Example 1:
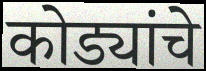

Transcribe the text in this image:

कोड्यांचे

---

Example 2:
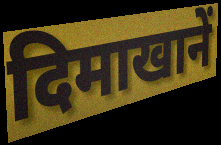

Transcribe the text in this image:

दिमाखानें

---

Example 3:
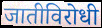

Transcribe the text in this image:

जातीविरोधी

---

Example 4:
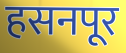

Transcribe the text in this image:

हसनपूर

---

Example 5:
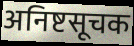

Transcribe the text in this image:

अनिष्टसूचक